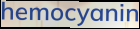
hemocyanin